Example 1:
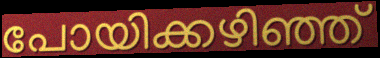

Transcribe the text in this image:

പോയിക്കഴിഞ്ഞ്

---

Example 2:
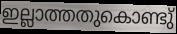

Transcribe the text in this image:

ഇല്ലാത്തതുകൊണ്ടു്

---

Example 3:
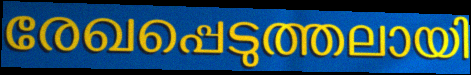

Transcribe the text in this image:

രേഖപ്പെടുത്തലായി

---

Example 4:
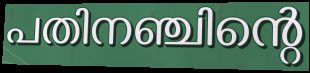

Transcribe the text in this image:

പതിനഞ്ചിന്റെ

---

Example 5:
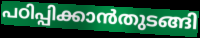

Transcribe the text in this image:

പഠിപ്പിക്കാൻതുടങ്ങി